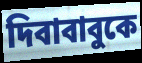
দিবাবাবুকে